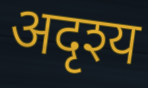
अदृश्य